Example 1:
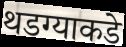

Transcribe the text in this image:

थडग्याकडे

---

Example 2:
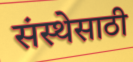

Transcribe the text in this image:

संस्थेसाठी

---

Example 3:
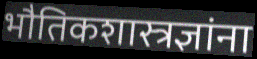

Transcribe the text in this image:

भौतिकशास्त्रज्ञांना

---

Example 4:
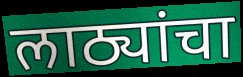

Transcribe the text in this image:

लाठ्यांचा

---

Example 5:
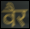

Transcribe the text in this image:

वैर